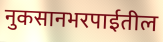
नुकसानभरपाईतील